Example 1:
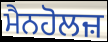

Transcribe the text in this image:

ਮੈਨਹੋਲਜ਼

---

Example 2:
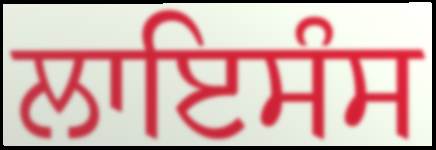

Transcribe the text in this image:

ਲਾਇਸੰਸ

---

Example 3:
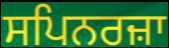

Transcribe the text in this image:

ਸਪਿਨਰਜ਼ਾ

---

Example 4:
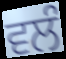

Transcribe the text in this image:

ਵਲੰ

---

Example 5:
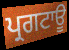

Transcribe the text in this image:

ਪ੍ਰਗਟਾਊ